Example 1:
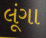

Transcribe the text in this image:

લૂંગા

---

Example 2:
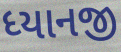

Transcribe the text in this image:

ધ્યાનજી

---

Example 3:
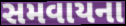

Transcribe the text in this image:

સમવાયના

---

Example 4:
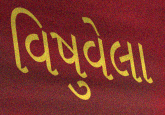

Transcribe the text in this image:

વિષુવેલા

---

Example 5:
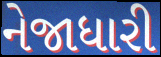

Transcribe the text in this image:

નેજાધારી